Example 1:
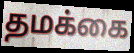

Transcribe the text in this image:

தமக்கை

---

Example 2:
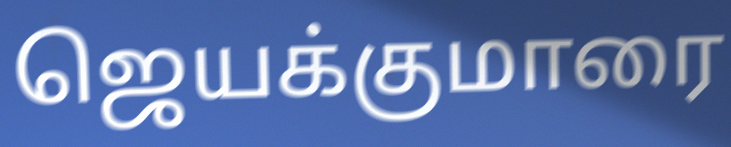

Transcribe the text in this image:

ஜெயக்குமாரை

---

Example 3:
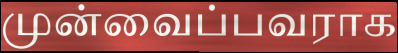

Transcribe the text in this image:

முன்வைப்பவராக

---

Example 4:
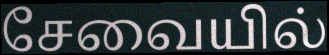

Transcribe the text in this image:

சேவையில்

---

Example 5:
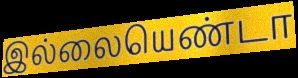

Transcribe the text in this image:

இல்லையெண்டா